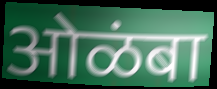
ओळंबा